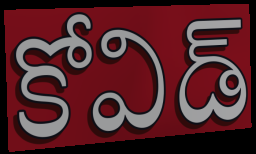
కోవిడ్